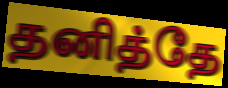
தனித்தே